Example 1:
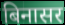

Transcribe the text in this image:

बिनासर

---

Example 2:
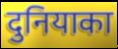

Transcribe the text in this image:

दुनियाका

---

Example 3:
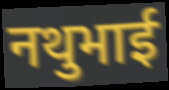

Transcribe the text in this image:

नथुभाई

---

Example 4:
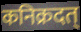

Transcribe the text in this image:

कनिक्रदत्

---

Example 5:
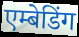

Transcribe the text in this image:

एम्बेडिंग